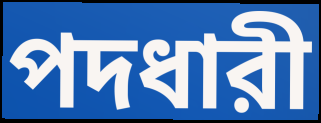
পদধারী